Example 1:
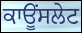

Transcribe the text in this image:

ਕਾਊਂਸਲੇਟ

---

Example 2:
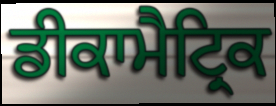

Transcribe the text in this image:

ਡੀਕਾਮੈਟ੍ਰਿਕ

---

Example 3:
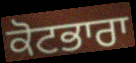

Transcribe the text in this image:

ਕੋਟਭਾਰਾ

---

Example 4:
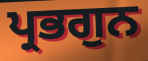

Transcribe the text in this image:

ਪ੍ਰਭਗੁਨ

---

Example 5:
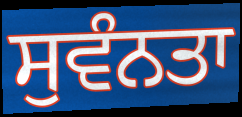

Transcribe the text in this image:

ਸੁਵੰਨਤਾ